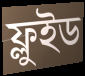
ফ্লুইড